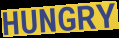
HUNGRY